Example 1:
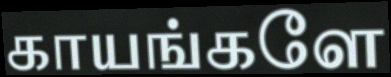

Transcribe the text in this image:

காயங்களே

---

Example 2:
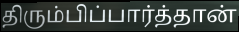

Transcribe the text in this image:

திரும்பிப்பார்த்தான்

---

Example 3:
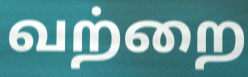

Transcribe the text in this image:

வற்றை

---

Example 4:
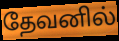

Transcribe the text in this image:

தேவனில்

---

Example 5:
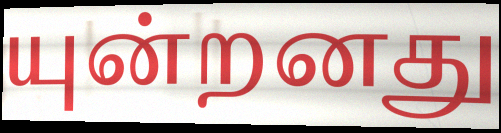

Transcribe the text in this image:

யுன்றனது